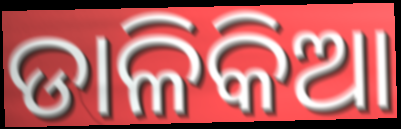
ଡାଳିକିଆ